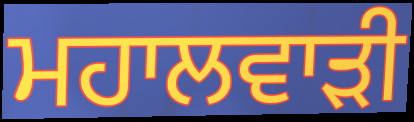
ਮਹਾਲਵਾੜੀ